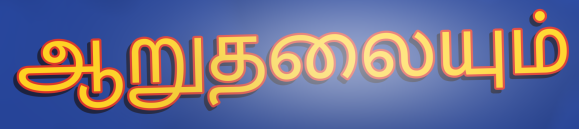
ஆறுதலையும்